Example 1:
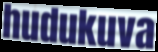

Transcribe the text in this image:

hudukuva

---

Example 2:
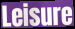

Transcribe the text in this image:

Leisure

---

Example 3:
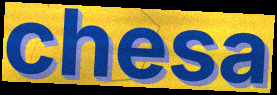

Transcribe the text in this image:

chesa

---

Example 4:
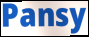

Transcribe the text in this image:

Pansy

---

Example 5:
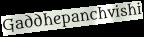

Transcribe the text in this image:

Gaddhepanchvishi